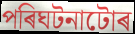
পৰিঘটনাটোৰ